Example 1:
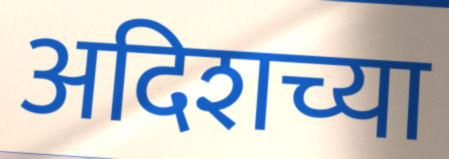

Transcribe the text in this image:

अदिशच्या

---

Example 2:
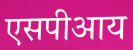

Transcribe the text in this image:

एसपीआय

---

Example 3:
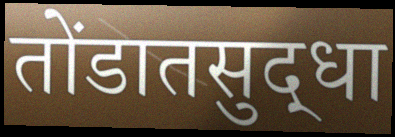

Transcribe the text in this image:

तोंडातसुद्धा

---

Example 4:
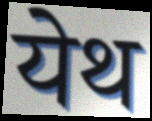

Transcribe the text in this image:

येथ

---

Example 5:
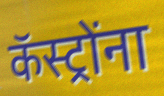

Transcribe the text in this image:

कॅस्ट्रोंना